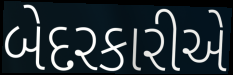
બેદરકારીએ